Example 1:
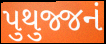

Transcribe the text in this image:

પુથુજ્જનં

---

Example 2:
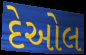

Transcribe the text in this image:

દેઓલ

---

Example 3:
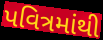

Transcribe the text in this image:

પવિત્રમાંથી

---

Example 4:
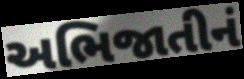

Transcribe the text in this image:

અભિજાતીનં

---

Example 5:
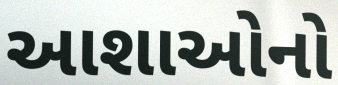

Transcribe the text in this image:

આશાઓનો